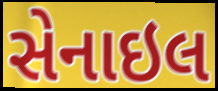
સેનાઇલ